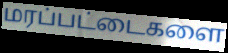
மரப்பட்டைகளை